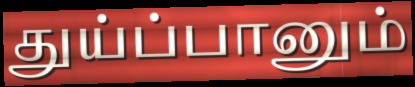
துய்ப்பானும்